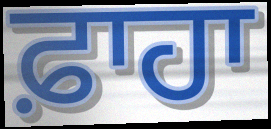
ਫ਼ਾਹਾ